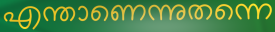
എന്താണെന്നുതന്നെ